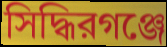
সিদ্ধিরগঞ্জে